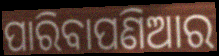
ପାରିବାପଣିଆର